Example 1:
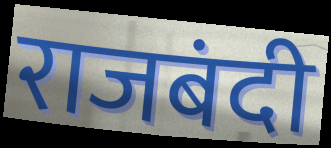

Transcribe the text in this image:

राजबंदी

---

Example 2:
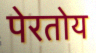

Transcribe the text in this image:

पेरतोय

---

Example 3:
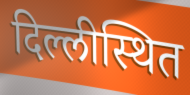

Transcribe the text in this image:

दिल्लीस्थित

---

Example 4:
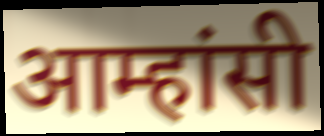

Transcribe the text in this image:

आम्हांसी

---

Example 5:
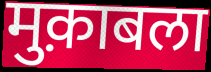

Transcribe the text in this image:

मुक़ाबला